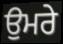
ਉਮਰੇ